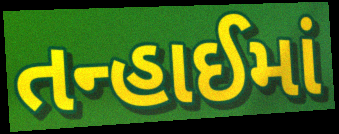
તન્હાઈમાં